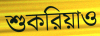
শুকরিয়াও